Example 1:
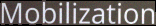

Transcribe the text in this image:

Mobilization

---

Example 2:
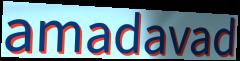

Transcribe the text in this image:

amadavad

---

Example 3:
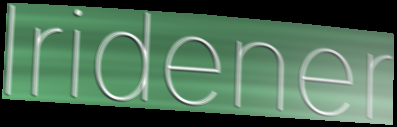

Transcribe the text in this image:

lridener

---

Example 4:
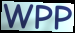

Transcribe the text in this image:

WPP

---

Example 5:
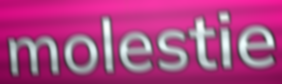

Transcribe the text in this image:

molestie